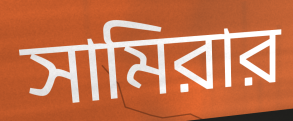
সামিরার